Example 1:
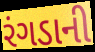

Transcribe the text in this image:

રંગડાની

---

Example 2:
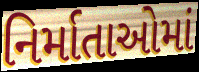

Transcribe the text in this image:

નિર્માતાઓમાં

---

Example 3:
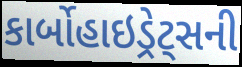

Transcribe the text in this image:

કાર્બોહાઇડ્રેટ્સની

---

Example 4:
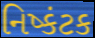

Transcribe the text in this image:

નિષ્કંટક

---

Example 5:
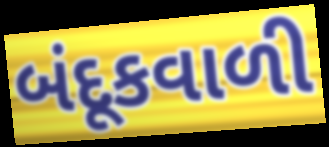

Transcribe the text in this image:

બંદૂકવાળી